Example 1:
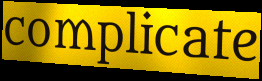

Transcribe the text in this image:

complicate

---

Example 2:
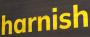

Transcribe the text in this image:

harnish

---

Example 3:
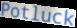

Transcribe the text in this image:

Potluck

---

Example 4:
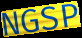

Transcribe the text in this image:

NGSP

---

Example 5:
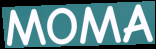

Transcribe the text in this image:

MOMA